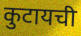
कुटायची